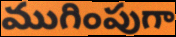
ముగింపుగా